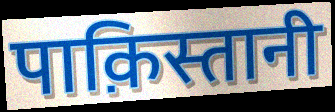
पाक़िस्तानी